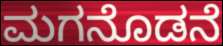
ಮಗನೊಡನೆ